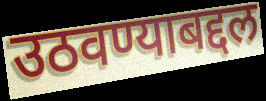
उठवण्याबद्दल